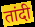
तांदी